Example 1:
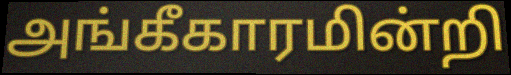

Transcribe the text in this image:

அங்கீகாரமின்றி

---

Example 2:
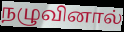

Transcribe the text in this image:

நழுவினால்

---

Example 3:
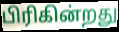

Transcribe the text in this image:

பிரிகின்றது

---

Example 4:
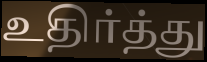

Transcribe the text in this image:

உதிர்த்து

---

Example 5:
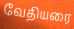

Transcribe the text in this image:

வேதியரை